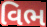
વિભ